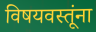
विषयवस्तूंना